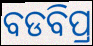
ବଡବିପ୍ର